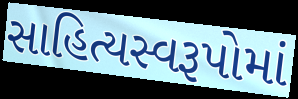
સાહિત્યસ્વરૂપોમાં